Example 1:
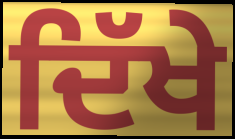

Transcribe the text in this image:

ਦਿੱਖੇ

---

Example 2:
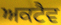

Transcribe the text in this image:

ਅਕਟੈਵ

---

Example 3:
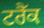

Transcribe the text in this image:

ਟਰੈੱਕ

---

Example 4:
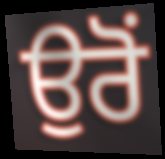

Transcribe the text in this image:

ਉਰੋਂ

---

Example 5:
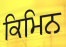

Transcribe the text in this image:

ਕਿਮਿਨ